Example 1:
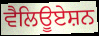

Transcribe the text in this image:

ਵੈਲਿਊਏਸ਼ਨ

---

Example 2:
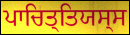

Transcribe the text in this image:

ਪਾਚਿਤ੍ਤਿਯਸ੍ਸ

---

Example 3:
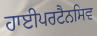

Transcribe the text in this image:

ਹਾਈਪਰਟੈਨਸਿਵ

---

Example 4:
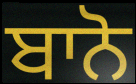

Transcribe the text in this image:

ਬਾਨੋ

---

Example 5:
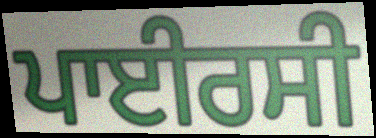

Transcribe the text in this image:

ਪਾਈਰਸੀ